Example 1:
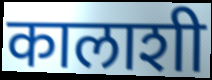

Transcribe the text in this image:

कालाशी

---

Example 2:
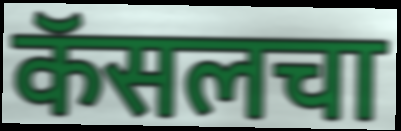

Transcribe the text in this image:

कॅसलचा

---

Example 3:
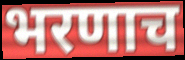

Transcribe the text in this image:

भरणाच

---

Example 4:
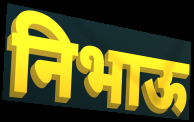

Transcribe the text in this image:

निभाऊ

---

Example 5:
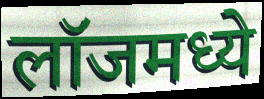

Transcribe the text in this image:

लॉजमध्ये